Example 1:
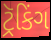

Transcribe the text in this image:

ટ્રૅકિંગ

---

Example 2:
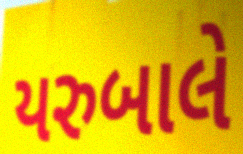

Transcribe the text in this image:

યરુબાલે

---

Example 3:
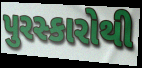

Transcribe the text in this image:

પુરસ્કારોથી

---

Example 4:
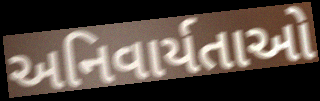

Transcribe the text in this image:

અનિવાર્યતાઓ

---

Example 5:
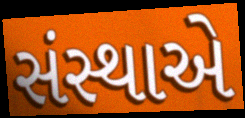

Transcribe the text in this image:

સંસ્થાએ